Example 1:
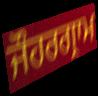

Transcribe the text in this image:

ਜੌਹਰਗ੍ਰਾਮ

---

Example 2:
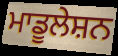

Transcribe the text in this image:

ਮਾਡੂਲੇਸ਼ਨ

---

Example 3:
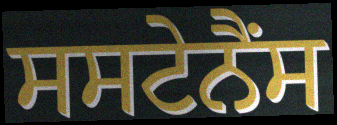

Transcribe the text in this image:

ਸਸਟੇਨੈਂਸ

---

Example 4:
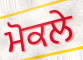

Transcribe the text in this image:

ਮੋਕਲੇ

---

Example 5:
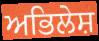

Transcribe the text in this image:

ਅਭਿਲੇਸ਼